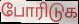
போரிடுக